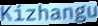
Kizhangu